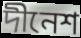
দীনেশ